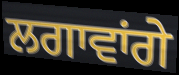
ਲਗਾਵਾਂਗੇ